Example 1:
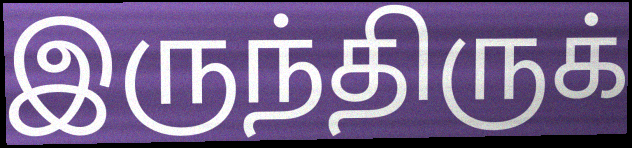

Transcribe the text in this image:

இருந்திருக்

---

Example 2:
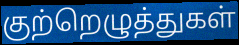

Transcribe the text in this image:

குற்றெழுத்துகள்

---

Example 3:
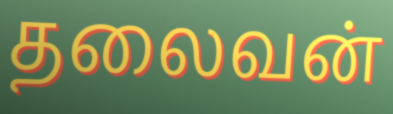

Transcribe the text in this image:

தலைவன்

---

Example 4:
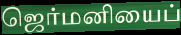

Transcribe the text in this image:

ஜெர்மனியைப்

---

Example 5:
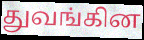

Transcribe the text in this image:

துவங்கின